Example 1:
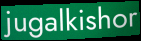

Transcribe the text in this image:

jugalkishor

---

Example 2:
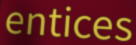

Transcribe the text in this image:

entices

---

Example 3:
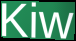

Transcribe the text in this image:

Kiw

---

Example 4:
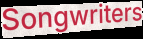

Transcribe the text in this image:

Songwriters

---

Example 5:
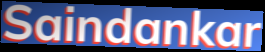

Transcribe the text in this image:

Saindankar